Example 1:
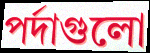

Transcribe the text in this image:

পর্দাগুলো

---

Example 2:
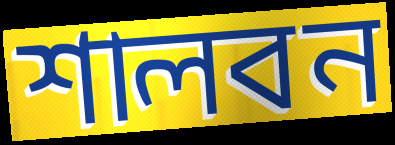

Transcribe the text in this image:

শালবন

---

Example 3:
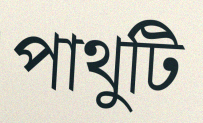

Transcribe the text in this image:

পাথুটি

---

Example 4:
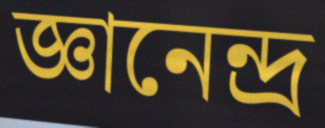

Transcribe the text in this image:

জ্ঞানেন্দ্র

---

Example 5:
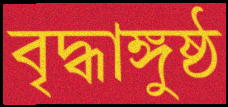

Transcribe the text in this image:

বৃদ্ধাঙ্গুষ্ঠ